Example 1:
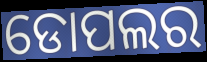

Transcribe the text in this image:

ଡୋପଲର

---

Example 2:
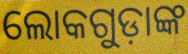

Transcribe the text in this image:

ଲୋକଗୁଡ଼ାଙ୍କ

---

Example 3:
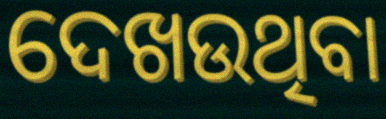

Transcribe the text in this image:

ଦେଖଉଥିବା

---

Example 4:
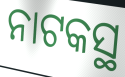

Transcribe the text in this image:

ନାଟକସ୍ଥ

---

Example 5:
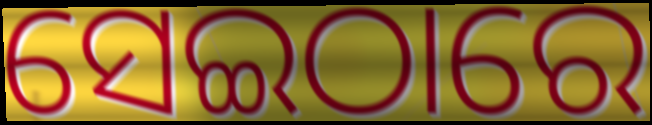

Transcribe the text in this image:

ସେଇଠାରେ